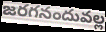
జరగనందువల్ల